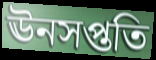
ঊনসপ্ততি